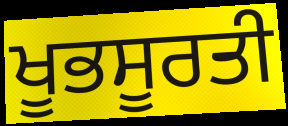
ਖੂਭਸੂਰਤੀ